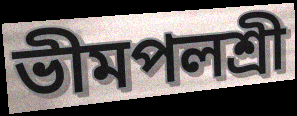
ভীমপলশ্রী